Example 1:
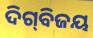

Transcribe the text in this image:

ଦିଗ୍‌ବିଜୟ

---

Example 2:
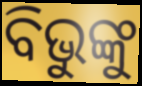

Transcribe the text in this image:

ବିଭୁଙ୍କୁ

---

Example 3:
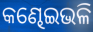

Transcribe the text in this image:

କଣ୍ଢେଇଭଳି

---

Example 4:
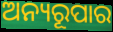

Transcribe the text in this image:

ଅନ୍ୟରୂପାର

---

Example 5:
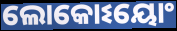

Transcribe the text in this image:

ଲୋକୋଽୟୋଂ